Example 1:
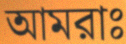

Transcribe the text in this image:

আমরাঃ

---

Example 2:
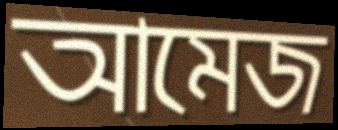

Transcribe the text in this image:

আমেজ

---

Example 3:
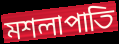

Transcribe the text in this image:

মশলাপাতি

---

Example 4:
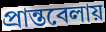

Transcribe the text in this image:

প্রান্তবেলায়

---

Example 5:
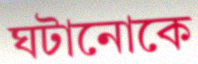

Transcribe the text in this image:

ঘটানোকে